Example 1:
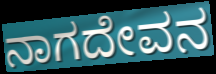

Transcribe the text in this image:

ನಾಗದೇವನ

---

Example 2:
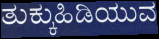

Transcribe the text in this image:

ತುಕ್ಕುಹಿಡಿಯುವ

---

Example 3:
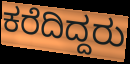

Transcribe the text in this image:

ಕರೆದಿದ್ದರು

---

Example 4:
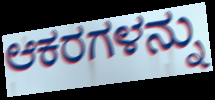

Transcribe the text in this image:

ಆಕರಗಳನ್ನು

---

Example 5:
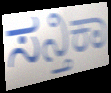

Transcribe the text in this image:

ಸನ್ತಿಕಾ